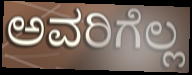
ಅವರಿಗೆಲ್ಲ